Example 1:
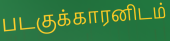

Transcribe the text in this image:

படகுக்காரனிடம்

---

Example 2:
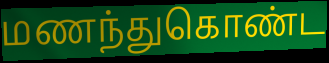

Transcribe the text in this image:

மணந்துகொண்ட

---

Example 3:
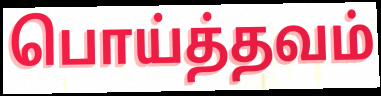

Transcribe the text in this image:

பொய்த்தவம்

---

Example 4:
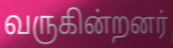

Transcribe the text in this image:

வருகின்றனர்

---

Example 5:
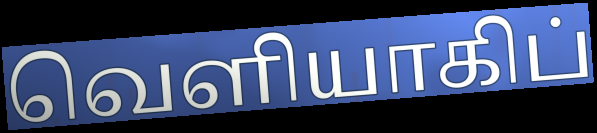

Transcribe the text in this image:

வெளியாகிப்